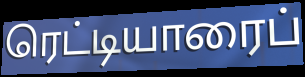
ரெட்டியாரைப்